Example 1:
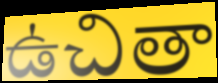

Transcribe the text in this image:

ఉచితా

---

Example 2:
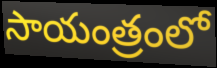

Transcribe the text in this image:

సాయంత్రంలో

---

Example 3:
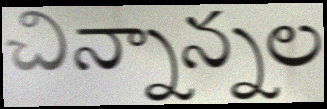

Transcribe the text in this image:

చిన్నాన్నల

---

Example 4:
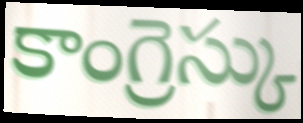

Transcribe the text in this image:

కాంగ్రెస్కు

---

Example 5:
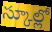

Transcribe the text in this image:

స్కూల్లో